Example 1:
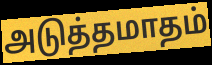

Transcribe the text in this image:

அடுத்தமாதம்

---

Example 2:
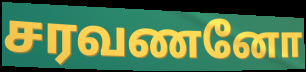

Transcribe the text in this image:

சரவணனோ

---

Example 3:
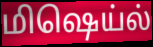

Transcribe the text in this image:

மிஷெய்ல்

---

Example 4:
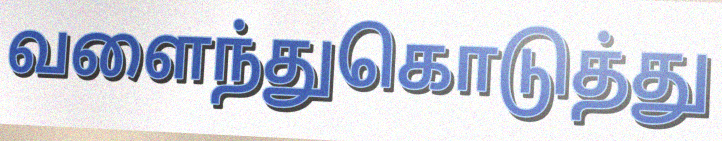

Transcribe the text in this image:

வளைந்துகொடுத்து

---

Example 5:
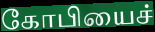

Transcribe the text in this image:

கோபியைச்